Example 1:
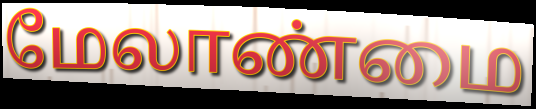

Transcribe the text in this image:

மேலாண்மை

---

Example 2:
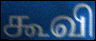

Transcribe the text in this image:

கூவி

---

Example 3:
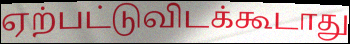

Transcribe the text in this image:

ஏற்பட்டுவிடக்கூடாது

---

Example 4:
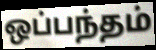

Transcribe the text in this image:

ஒப்பந்தம்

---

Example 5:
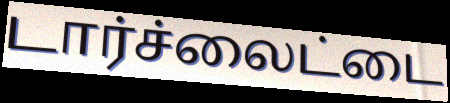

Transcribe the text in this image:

டார்ச்லைட்டை